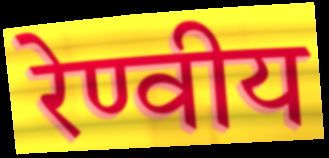
रेण्वीय